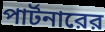
পার্টনারের